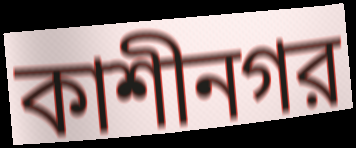
কাশীনগর